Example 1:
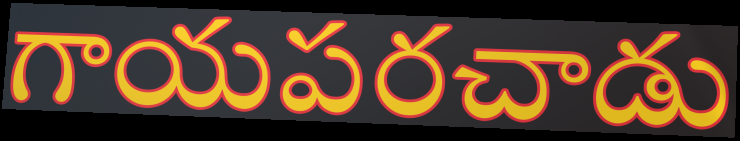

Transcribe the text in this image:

గాయపరచాడు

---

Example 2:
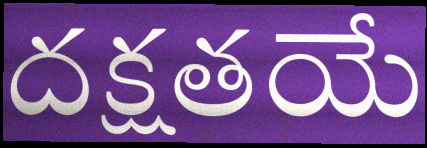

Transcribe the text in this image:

దక్షతయే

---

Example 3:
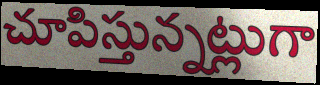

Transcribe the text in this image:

చూపిస్తున్నట్లుగా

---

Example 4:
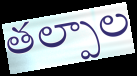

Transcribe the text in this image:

తల్పాల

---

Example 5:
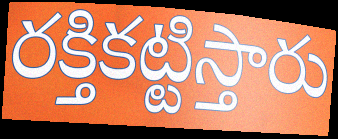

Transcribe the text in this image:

రక్తికట్టిస్తారు